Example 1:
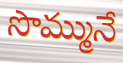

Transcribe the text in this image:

సొమ్మునే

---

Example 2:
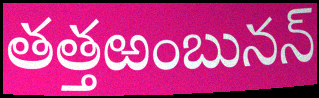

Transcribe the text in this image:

తత్తఱంబునన్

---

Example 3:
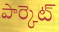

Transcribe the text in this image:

పార్కెట్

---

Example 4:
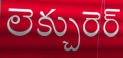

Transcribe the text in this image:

లెక్చురెర్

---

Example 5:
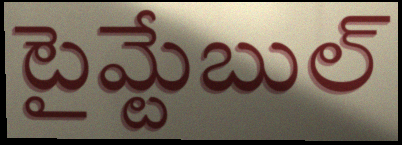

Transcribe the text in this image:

టైమ్టేబుల్